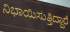
ನಿಭಾಯಿಸುತ್ತಿದ್ದಾರೆ